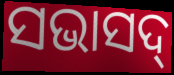
ସଭାସଦ୍